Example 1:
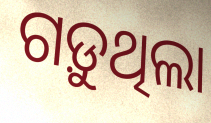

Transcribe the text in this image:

ଗଡ଼ୁଥିଲା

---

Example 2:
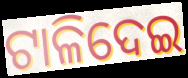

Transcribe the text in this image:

ଟାଳିଦେଇ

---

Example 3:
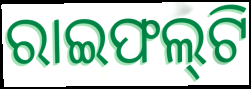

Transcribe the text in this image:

ରାଇଫଲ୍‍ଟି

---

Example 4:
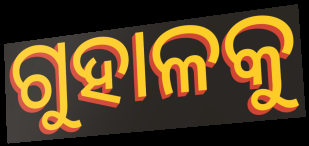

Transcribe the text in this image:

ଗୁହାଳକୁ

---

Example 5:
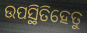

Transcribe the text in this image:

ଉପସ୍ଥିତିହେତୁ